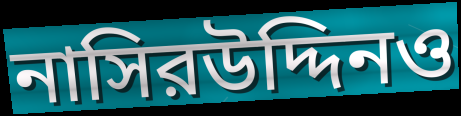
নাসিরউদ্দিনও